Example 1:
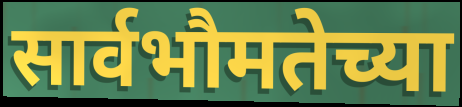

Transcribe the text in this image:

सार्वभौमतेच्या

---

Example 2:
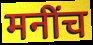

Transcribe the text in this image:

मनींच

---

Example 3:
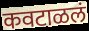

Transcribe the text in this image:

कवटाळलं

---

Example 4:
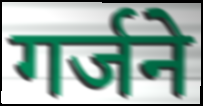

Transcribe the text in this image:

गर्जने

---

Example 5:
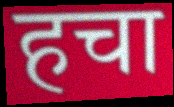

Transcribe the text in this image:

हचा